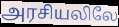
அரசியலிலே